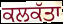
ਕਲਕੱਤਾ